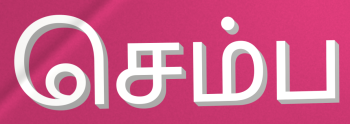
செம்ப